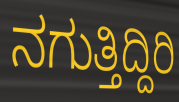
ನಗುತ್ತಿದ್ದಿರಿ